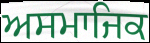
ਅਸਮਾਜਿਕ